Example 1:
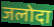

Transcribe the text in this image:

जलोदा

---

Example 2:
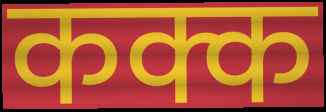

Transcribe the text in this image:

कक्क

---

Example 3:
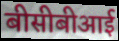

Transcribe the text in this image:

बीसीबीआई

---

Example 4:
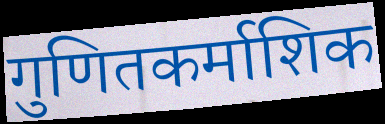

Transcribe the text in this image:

गुणितकर्माशिक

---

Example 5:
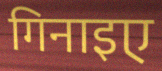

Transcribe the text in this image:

गिनाइए